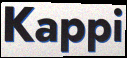
Kappi